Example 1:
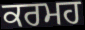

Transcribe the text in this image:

ਕਰਮਹ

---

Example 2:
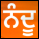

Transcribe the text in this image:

ਨੰਦੂ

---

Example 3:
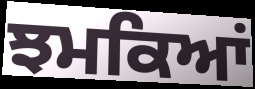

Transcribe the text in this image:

ਝਮਕਿਆਂ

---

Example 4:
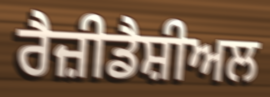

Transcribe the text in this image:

ਰੈਜ਼ੀਡੈਸ਼ੀਅਲ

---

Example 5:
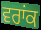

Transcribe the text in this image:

ਵਰਾਂਕ